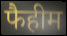
फैहीम